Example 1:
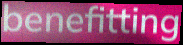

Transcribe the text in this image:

benefitting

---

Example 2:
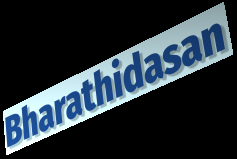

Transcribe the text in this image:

Bharathidasan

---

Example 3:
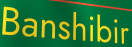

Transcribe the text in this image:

Banshibir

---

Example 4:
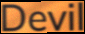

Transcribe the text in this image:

Devil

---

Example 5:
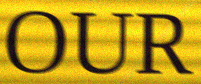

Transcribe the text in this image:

OUR